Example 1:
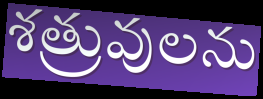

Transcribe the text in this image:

శత్రువులను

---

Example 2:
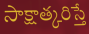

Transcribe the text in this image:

సాక్షాత్కరిస్తే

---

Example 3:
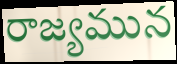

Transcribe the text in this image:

రాజ్యమున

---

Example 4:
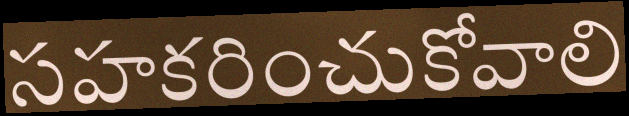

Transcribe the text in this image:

సహకరించుకోవాలి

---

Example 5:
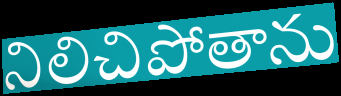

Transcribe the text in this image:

నిలిచిపోతాను